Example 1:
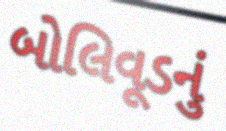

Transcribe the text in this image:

બોલિવૂડનું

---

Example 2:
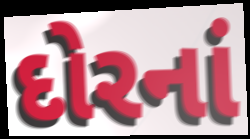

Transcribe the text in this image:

દોરનાં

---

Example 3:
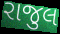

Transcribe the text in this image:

રાજુલ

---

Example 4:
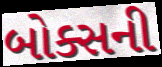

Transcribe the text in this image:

બોક્સની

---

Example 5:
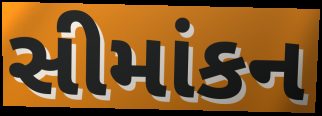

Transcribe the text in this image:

સીમાંકન